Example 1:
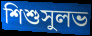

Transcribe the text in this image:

শিশুসুলভ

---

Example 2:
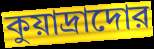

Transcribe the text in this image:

কুয়াদ্রাদোর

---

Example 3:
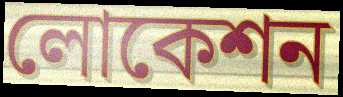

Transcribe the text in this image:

লোকেশন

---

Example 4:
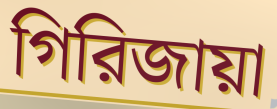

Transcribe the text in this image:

গিরিজায়া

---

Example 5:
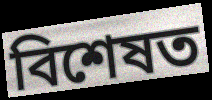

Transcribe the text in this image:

বিশেষত